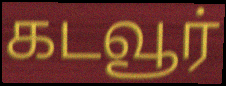
கடவூர்